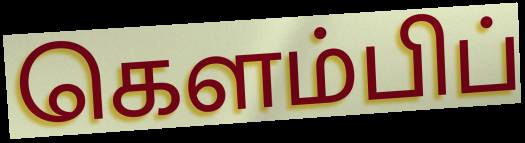
கௌம்பிப்